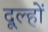
दूल्‍हों